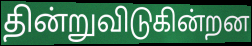
தின்றுவிடுகின்றன